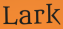
Lark